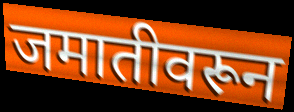
जमातीवरून